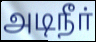
அடிநீர்